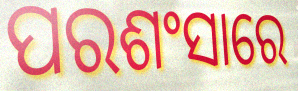
ପରଶଂସାରେ